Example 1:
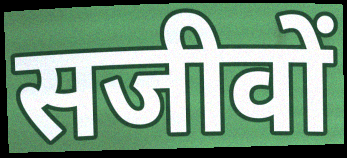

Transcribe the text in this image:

सजीवों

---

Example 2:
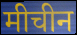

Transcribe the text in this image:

मीचीन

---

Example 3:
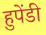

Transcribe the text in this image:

हुपेंडी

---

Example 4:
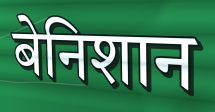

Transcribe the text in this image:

बेनिशान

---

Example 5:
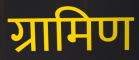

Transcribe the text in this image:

ग्रामिण